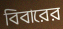
বিবারের